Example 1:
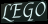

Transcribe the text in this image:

LEGO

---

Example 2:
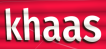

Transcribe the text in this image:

khaas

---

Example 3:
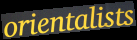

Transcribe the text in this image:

orientalists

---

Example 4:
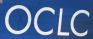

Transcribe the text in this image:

OCLC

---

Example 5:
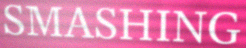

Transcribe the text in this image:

SMASHING